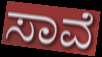
ಸಾವೆ